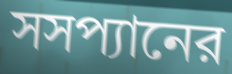
সসপ্যানের